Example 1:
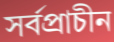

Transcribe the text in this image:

সর্বপ্রাচীন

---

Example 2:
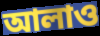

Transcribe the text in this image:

আলাও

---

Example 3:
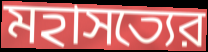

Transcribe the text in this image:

মহাসত্যের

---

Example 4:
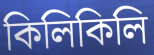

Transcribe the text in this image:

কিলিকিলি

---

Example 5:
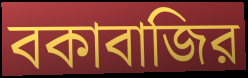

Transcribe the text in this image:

বকাবাজির